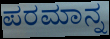
ಪರಮಾನ್ನ